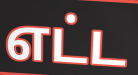
எட்ட